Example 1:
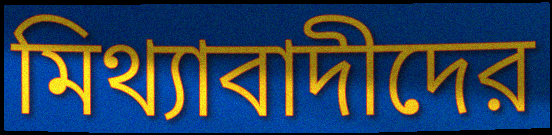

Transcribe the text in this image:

মিথ্যাবাদীদের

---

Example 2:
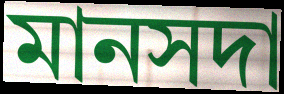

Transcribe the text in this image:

মানসদা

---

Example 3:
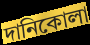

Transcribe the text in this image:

দানিকোলা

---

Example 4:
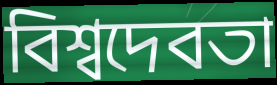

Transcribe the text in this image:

বিশ্বদেবতা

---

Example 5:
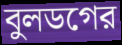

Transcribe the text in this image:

বুলডগের